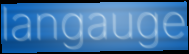
langauge